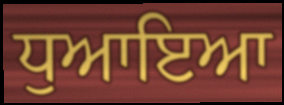
ਧੁਆਇਆ